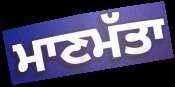
ਮਾਣਮੱਤਾ